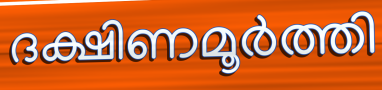
ദക്ഷിണമൂർത്തി